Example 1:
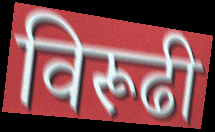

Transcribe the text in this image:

विरूढी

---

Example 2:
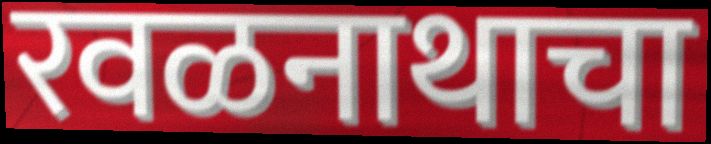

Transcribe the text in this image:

रवळनाथाचा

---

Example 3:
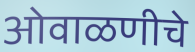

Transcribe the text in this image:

ओवाळणीचे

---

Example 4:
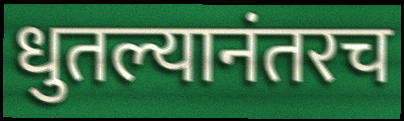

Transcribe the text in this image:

धुतल्यानंतरच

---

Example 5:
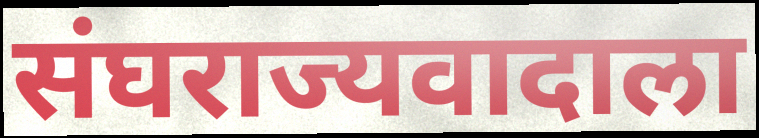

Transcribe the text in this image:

संघराज्यवादाला